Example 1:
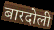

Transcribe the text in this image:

बारदोली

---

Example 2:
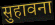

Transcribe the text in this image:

सुहावना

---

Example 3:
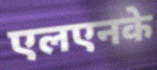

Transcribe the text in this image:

एलएनके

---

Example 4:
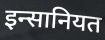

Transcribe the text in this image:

इन्सानियत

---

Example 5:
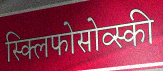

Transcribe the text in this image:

स्क्लिफोसोव्स्की